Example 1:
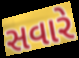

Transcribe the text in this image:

સવારે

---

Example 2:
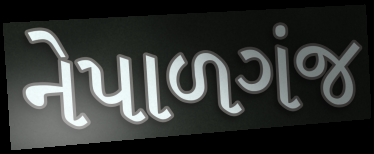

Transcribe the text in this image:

નેપાળગંજ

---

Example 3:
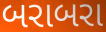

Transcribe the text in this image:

બરાબરા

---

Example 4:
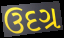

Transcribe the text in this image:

ઉદગ્ર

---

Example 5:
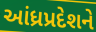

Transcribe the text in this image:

આંધ્રપ્રદેશને